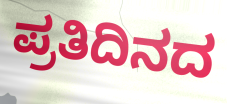
ಪ್ರತಿದಿನದ